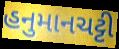
હનુમાનચટ્ટી